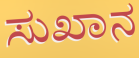
ಸುಖಾನ